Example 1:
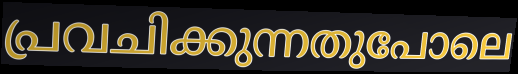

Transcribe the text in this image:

പ്രവചിക്കുന്നതുപോലെ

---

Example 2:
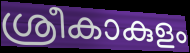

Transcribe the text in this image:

ശ്രീകാകുളം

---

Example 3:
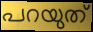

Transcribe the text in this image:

പറയുത്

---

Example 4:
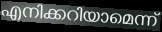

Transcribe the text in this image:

എനിക്കറിയാമെന്ന്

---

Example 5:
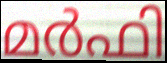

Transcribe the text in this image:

മർഫി